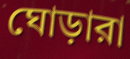
ঘোড়ারা